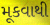
મૂકવાથી